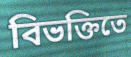
বিভক্তিতে